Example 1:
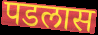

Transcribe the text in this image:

पडलास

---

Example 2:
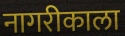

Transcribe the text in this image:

नागरीकाला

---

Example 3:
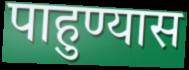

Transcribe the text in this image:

पाहुण्यास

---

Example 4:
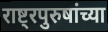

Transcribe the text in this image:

राष्ट्रपुरुषांच्या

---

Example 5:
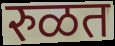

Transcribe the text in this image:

रुळत